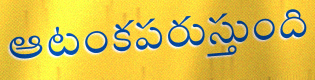
ఆటంకపరుస్తుంది